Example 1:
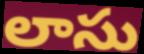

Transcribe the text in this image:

లాసు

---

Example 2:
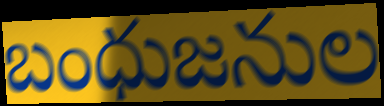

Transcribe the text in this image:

బంధుజనుల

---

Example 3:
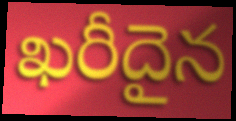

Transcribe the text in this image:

ఖరీదైన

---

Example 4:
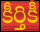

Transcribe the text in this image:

కీర్తికీ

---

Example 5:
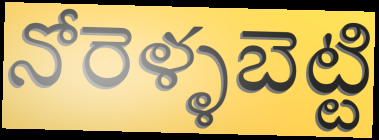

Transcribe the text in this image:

నోరెళ్ళబెట్టి